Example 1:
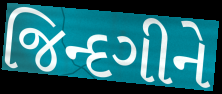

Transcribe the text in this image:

જિન્દગીને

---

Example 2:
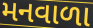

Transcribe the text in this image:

મનવાળા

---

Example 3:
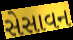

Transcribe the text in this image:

સેસાવન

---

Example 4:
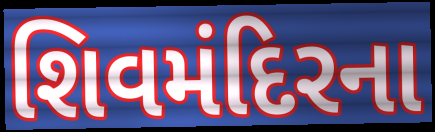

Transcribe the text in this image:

શિવમંદિરના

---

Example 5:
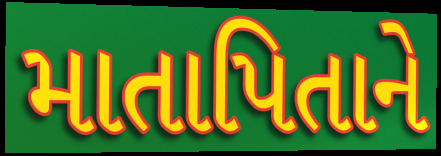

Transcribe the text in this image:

માતાપિતાને